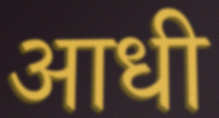
आधी